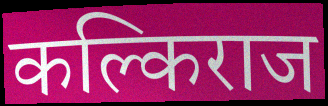
कल्किराज